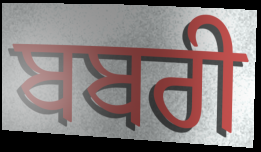
ਬਬਰੀ